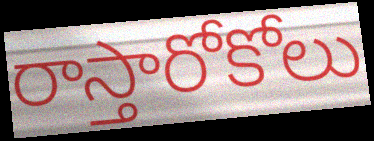
రాస్తారోకోలు